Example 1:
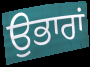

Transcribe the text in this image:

ਉਭਾਰਾਂ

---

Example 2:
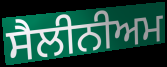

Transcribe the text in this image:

ਸੈਲੀਨੀਅਮ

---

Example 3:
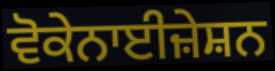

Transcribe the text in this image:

ਵੋਕੇਨਾਈਜ਼ੇਸ਼ਨ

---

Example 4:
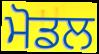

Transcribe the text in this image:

ਮੋਡਲ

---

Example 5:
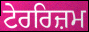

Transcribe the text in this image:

ਟੇਰਰਿਜ਼ਮ